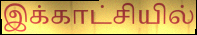
இக்காட்சியில்